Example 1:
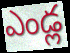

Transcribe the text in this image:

ఎండ్ల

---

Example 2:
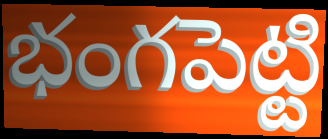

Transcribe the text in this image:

భంగపెట్టి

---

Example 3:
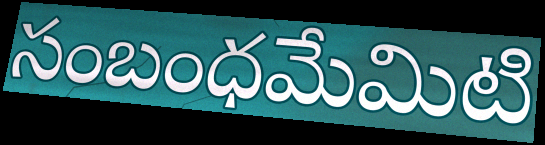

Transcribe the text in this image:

సంబంధమేమిటి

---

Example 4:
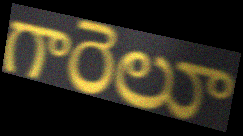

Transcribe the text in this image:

గారెలూ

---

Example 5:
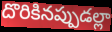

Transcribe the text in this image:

దొరికినప్పుడల్లా